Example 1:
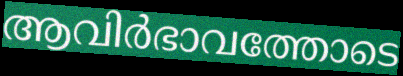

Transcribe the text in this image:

ആവിർഭാവത്തോടെ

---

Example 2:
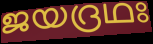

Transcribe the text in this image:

ജയദ്രഥഃ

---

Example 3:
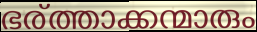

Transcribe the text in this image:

ഭര്ത്താക്കന്മാരും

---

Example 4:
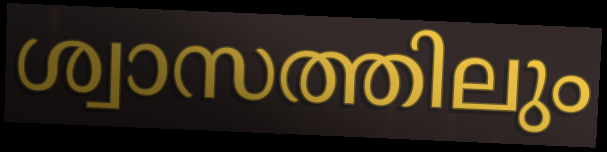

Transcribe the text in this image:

ശ്വാസത്തിലും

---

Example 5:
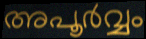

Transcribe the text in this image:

അപൂർവ്വം